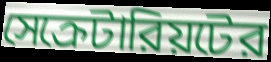
সেক্রেটারিয়টের